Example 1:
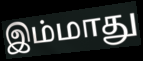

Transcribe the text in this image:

இம்மாது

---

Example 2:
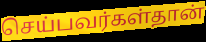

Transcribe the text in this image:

செய்பவர்கள்தான்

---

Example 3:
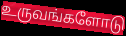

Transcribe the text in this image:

உருவங்களோடு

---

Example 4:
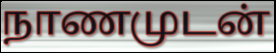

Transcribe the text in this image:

நாணமுடன்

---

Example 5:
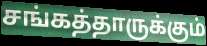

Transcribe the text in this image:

சங்கத்தாருக்கும்